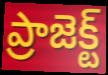
ప్రాజెక్ట్